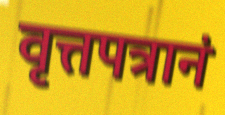
वृत्तपत्रानं